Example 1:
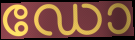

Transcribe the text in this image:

ഡോ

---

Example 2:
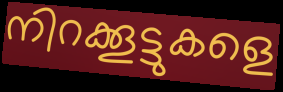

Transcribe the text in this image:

നിറക്കൂട്ടുകളെ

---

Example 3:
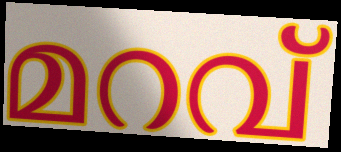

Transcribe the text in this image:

മറവ്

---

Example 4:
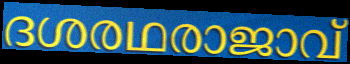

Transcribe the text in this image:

ദശരഥരാജാവ്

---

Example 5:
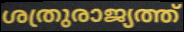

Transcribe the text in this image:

ശത്രുരാജ്യത്ത്